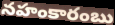
నహంకారంబు